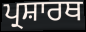
ਪ੍ਰਸ਼ਾਰਥ